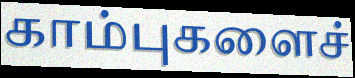
காம்புகளைச்